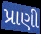
પ્રાણી